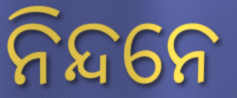
ନିନ୍ଦନେ